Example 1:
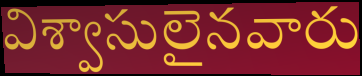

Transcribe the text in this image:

విశ్వాసులైనవారు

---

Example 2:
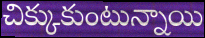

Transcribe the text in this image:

చిక్కుకుంటున్నాయి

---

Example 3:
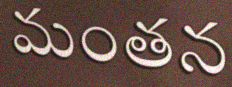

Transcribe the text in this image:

మంతన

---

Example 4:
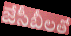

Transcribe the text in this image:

జేసీబీలతో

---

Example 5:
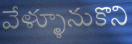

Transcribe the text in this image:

వేళ్ళూనుకొని